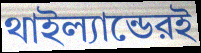
থাইল্যান্ডেরই